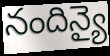
నందిన్యై